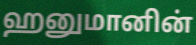
ஹனுமானின்